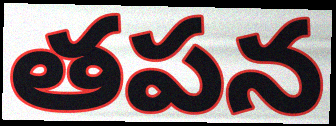
తపన